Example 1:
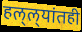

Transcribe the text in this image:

हल्ल्यांतही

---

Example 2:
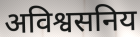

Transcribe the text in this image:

अविश्वसनिय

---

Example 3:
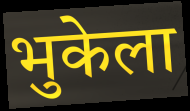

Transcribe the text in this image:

भुकेला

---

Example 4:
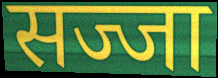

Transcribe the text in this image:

सज्जा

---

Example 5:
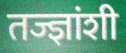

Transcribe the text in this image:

तज्ज्ञांशी